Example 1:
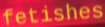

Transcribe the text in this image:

fetishes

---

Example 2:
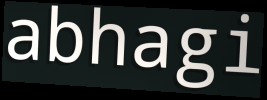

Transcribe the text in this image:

abhagi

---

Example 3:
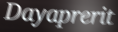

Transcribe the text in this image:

Dayaprerit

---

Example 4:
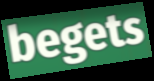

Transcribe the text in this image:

begets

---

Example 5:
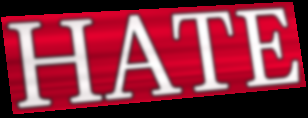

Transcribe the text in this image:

HATE